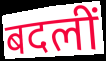
बदलीं